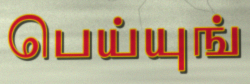
பெய்யுங்